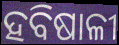
ହବିଷାଳୀ